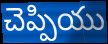
చెప్పియు